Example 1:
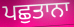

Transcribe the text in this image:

ਪਛੁਤਾਨਾ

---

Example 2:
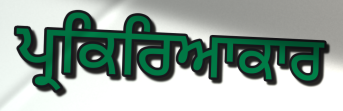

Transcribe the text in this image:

ਪ੍ਰਕਿਰਿਆਕਾਰ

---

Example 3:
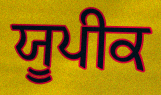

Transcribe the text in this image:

ਯੂਪੀਕ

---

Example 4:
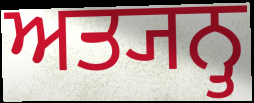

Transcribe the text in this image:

ਅਤ੍ਯਨ੍ਤ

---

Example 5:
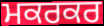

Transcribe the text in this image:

ਮਕਰਕਰ